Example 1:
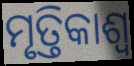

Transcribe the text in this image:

ମୃତ୍ତିକାଶ୍ୱ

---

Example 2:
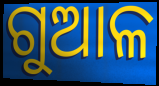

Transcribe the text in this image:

ଗୁଆଳ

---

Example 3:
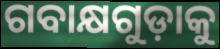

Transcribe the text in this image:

ଗବାକ୍ଷଗୁଡ଼ାକୁ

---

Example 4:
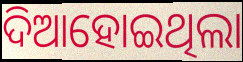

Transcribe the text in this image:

ଦିଆହୋଇଥିଲା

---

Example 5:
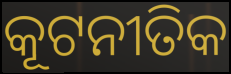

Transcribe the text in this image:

କୂଟନୀତିକ